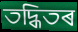
তদ্ধিতৰ